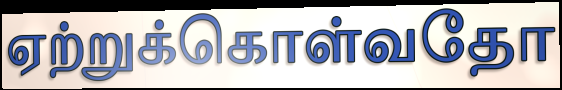
ஏற்றுக்கொள்வதோ